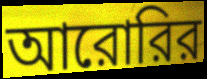
আরোরির